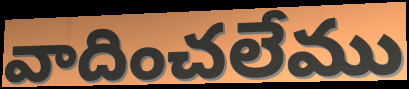
వాదించలేము